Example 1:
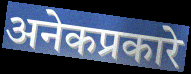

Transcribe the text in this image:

अनेकप्रकारे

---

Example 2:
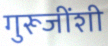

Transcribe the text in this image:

गुरूजींशी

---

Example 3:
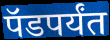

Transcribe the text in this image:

पॅडपर्यंत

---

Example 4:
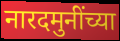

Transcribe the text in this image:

नारदमुनींच्या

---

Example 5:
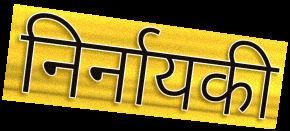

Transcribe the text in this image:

निर्नायकी